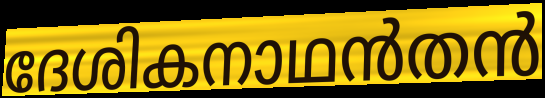
ദേശികനാഥൻതൻ